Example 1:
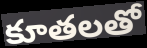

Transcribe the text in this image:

కూతలతో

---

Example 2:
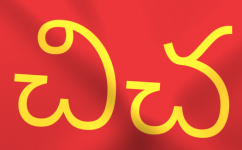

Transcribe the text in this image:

చిచ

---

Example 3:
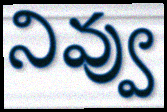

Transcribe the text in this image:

నివ్వు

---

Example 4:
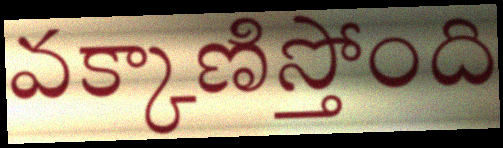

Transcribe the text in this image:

వక్కాణిస్తోంది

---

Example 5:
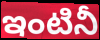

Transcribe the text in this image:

ఇంటినీ